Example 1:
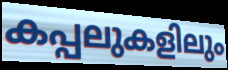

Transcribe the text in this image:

കപ്പലുകളിലും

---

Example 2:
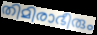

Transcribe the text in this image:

തിമിരാഭീരും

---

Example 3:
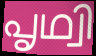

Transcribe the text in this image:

പൃഥ്വി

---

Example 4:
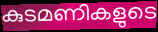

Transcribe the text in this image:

കുടമണികളുടെ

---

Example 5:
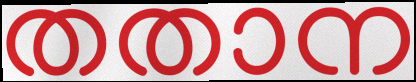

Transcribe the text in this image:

തതാന